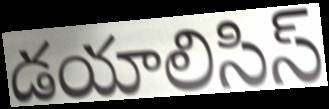
డయాలిసిస్